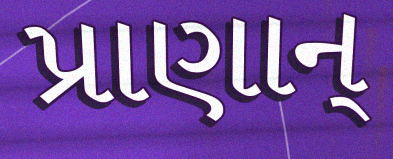
પ્રાણાન્